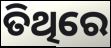
ତିଥିରେ